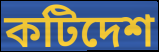
কটিদেশ